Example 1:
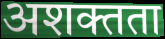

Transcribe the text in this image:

अशक्‍तता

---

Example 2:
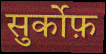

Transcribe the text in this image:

सुर्कोफ़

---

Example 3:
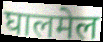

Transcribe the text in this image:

घालमेल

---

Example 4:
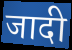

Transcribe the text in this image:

जादी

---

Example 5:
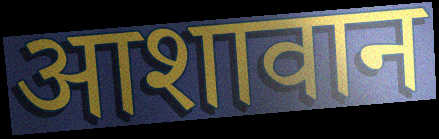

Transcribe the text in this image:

आशावान